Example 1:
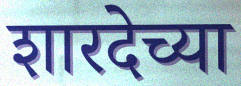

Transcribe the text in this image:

शारदेच्या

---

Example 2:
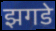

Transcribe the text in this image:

झगडे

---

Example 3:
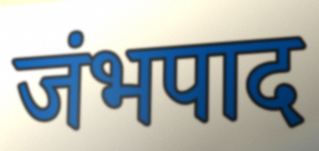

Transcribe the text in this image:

जंभपाद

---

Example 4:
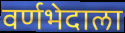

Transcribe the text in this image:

वर्णभेदाला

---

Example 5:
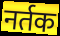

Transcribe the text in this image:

नर्तक